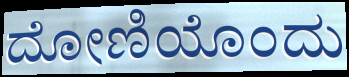
ದೋಣಿಯೊಂದು